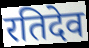
रतिदेव